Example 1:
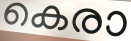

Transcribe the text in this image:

കെരാ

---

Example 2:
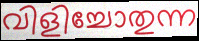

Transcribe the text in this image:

വിളിച്ചോതുന്ന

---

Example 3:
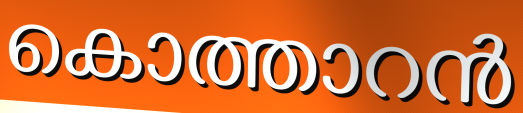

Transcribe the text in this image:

കൊത്താറൻ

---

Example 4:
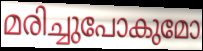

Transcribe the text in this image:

മരിച്ചുപോകുമോ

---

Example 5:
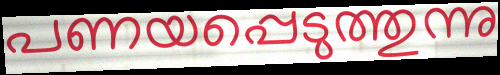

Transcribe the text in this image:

പണയപ്പെടുത്തുന്നു